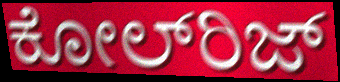
ಕೋಲ್‍ರಿಜ್